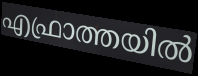
എഫ്രാത്തയിൽ